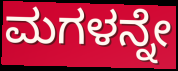
ಮಗಳನ್ನೇ